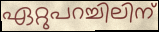
ഏറ്റുപറച്ചിലിന്